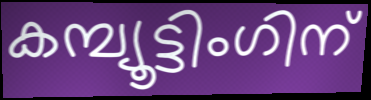
കമ്പ്യൂട്ടിംഗിന്